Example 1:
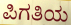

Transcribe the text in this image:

ಪಿಗತಿಯ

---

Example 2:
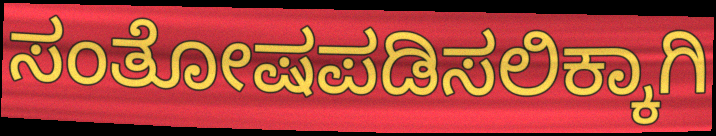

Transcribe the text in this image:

ಸಂತೋಷಪಡಿಸಲಿಕ್ಕಾಗಿ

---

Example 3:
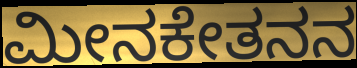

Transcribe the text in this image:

ಮೀನಕೇತನನ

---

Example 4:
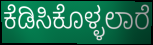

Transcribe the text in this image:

ಕೆಡಿಸಿಕೊಳ್ಳಲಾರೆ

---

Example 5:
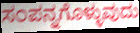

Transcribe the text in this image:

ಸಂಪನ್ನಗೊಳ್ಳುವುದು